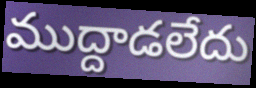
ముద్దాడలేదు